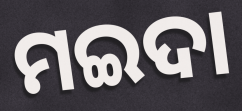
ମଇଦା